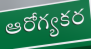
ఆరోగ్యకర